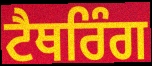
ਟੈਥਰਿੰਗ